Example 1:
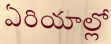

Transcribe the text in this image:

ఏరియాల్లో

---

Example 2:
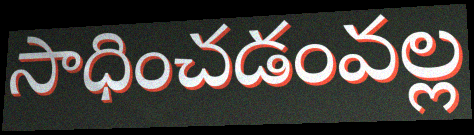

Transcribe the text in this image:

సాధించడంవల్ల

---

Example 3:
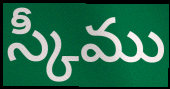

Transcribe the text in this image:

స్కీము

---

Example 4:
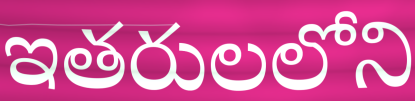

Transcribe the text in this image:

ఇతరులలోని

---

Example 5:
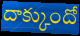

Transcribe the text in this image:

దాక్కుందో